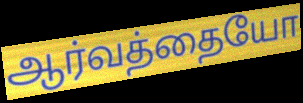
ஆர்வத்தையோ